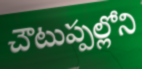
చౌటుప్పల్లోని